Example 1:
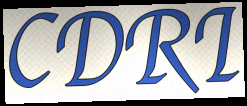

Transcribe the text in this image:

CDRI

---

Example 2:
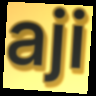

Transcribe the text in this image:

aji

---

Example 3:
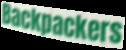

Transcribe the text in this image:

Backpackers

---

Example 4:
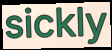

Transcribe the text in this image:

sickly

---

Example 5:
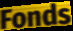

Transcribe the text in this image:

Fonds